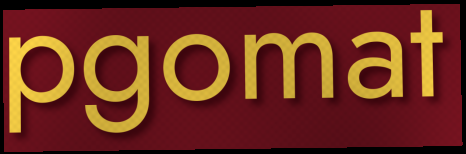
pgomat